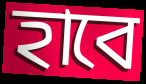
হাবে